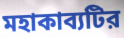
মহাকাব্যটির